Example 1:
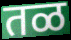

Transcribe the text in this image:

तळ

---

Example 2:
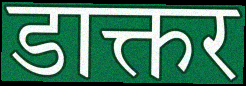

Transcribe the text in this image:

डाक्तर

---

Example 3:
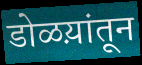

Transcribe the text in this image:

डोळय़ांतून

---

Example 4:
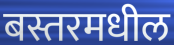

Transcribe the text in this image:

बस्तरमधील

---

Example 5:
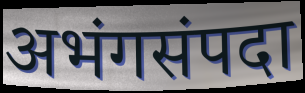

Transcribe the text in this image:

अभंगसंपदा